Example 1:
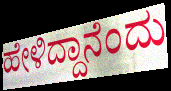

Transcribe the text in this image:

ಹೇಳಿದ್ದಾನೆಂದು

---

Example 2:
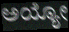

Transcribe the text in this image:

ಅಯ್ಯೋ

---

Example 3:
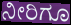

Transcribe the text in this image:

ನೀರಿಗೂ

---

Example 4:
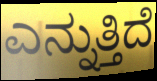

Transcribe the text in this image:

ಎನ್ನುತ್ತಿದೆ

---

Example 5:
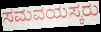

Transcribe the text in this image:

ಸಮವಯಸ್ಕರು